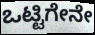
ಒಟ್ಟಿಗೇನೇ